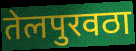
तेलपुरवठा